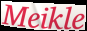
Meikle